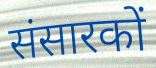
संसारकों